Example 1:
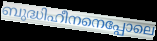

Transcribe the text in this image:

ബുദ്ധിഹീനനെപ്പോലെ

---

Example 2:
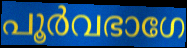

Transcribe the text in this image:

പൂർവഭാഗേ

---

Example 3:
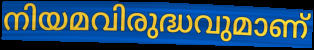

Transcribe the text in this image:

നിയമവിരുദ്ധവുമാണ്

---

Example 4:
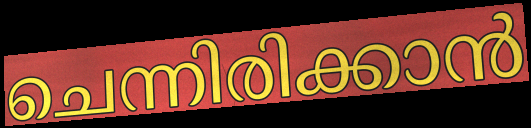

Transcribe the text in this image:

ചെന്നിരിക്കാൻ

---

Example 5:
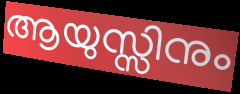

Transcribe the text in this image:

ആയുസ്സിനും